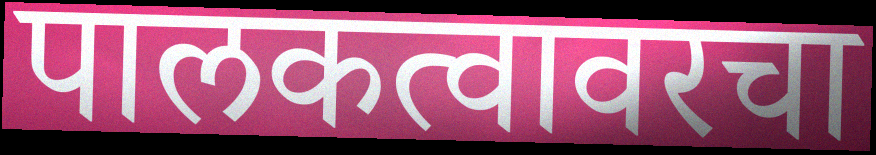
पालकत्वावरचा